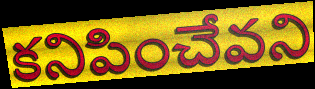
కనిపించేవని